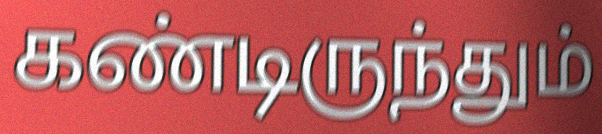
கண்டிருந்தும்